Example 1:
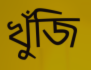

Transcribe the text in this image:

খুঁজি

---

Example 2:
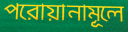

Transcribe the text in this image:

পরোয়ানামূলে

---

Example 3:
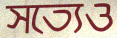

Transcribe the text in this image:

সত্যেও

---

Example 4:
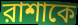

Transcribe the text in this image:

রাশাকে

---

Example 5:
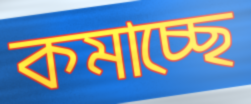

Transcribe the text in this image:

কমাচ্ছে